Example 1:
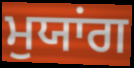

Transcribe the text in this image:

ਮੁਯਾਂਗ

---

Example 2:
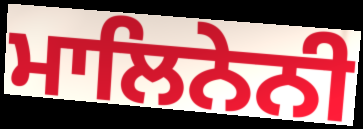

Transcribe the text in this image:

ਮਾਲਿਨੇਨੀ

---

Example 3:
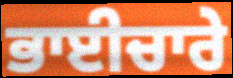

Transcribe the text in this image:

ਭਾਈਚਾਰੇ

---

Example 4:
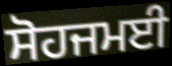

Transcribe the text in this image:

ਸੋਹਜਮਈ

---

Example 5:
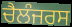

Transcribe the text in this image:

ਚੈਲੰਜਰਸ